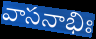
వాసనాభిః